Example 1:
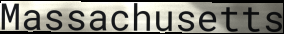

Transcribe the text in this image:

Massachusetts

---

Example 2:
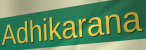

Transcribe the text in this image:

Adhikarana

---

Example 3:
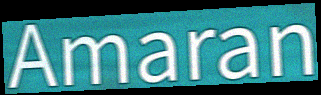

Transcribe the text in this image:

Amaran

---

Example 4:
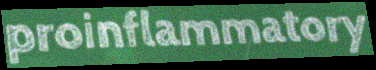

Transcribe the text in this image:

proinflammatory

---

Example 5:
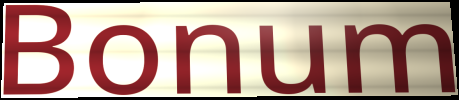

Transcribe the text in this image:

Bonum